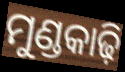
ମୁଣ୍ଡକାଢ଼ି